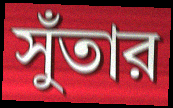
সুঁতার